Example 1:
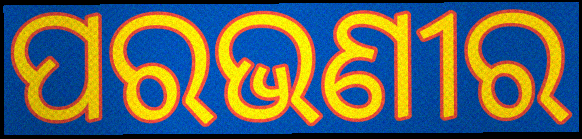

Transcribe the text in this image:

ପରଭଣୀର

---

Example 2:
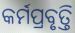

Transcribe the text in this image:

କର୍ମପ୍ରବୃତ୍ତି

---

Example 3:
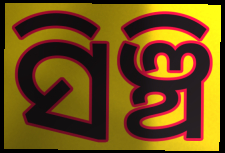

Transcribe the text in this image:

ସିଞ୍ଚି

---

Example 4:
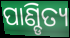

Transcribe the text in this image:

ପାଣ୍ଡିତ୍ୟ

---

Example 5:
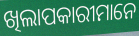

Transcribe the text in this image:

ଖିଲାପକାରୀମାନେ